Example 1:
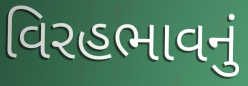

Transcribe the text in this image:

વિરહભાવનું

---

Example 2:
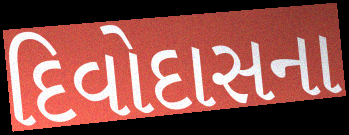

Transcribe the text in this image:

દિવોદાસના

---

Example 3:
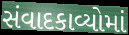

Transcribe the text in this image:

સંવાદકાવ્યોમાં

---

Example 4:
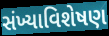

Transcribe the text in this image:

સંખ્યાવિશેષણ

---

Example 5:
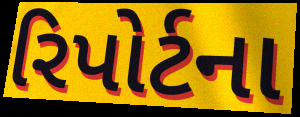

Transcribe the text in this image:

રિપોર્ટના